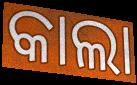
କାଲା